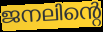
ജനലിന്റെ